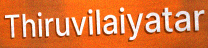
Thiruvilaiyatar